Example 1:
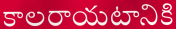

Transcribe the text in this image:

కాలరాయటానికి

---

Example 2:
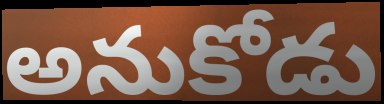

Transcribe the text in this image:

అనుకోడు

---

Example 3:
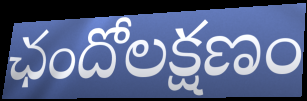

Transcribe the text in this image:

ఛందోలక్షణం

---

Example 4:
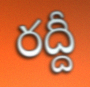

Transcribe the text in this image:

రద్దీ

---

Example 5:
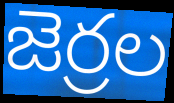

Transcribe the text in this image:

జెర్రల